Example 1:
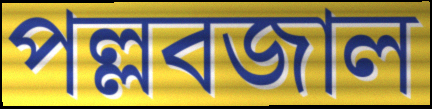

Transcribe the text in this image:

পল্লবজাল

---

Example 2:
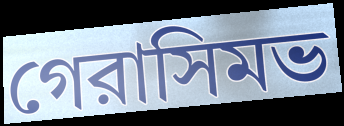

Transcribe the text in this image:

গেরাসিমভ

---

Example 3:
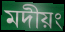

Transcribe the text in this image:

মদীয়ং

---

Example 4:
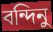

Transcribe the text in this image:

বন্দিনু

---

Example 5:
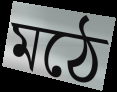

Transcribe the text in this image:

মঠে